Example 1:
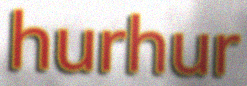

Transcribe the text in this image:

hurhur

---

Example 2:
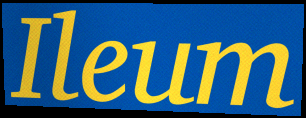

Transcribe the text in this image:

Ileum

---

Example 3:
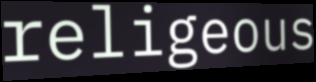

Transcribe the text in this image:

religeous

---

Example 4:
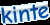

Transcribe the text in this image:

kinte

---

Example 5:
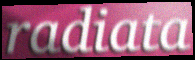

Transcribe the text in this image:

radiata